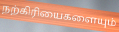
நற்கிரியைகளையும்